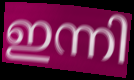
ഇന്നി